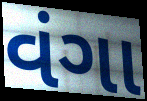
વંગા